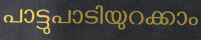
പാട്ടുപാടിയുറക്കാം